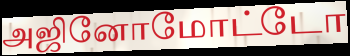
அஜினோமோட்டோ